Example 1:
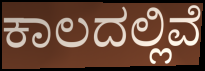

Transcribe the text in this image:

ಕಾಲದಲ್ಲಿವೆ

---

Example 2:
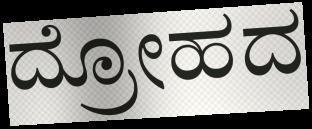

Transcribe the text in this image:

ದ್ರೋಹದ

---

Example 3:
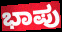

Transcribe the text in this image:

ಭಾಪು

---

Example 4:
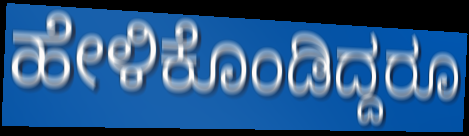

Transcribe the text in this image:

ಹೇಳಿಕೊಂಡಿದ್ದರೂ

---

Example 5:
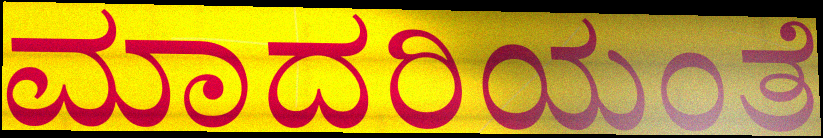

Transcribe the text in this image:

ಮಾದರಿಯಂತೆ